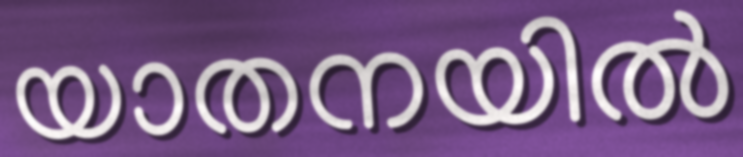
യാതനയിൽ